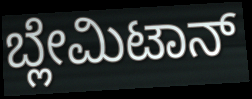
ಬ್ಲೇಮಿಟಾನ್